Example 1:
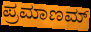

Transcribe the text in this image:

ಪ್ರಮಾಣಮ್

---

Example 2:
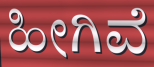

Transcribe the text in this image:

ಹೀಗಿವೆ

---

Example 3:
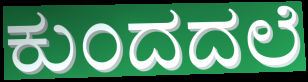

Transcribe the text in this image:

ಕುಂದದಲೆ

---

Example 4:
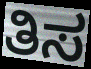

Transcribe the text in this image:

ತಿಸ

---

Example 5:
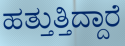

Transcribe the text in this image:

ಹತ್ತುತ್ತಿದ್ದಾರೆ